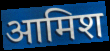
आमिश